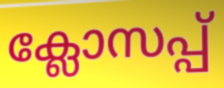
ക്ലോസപ്പ്